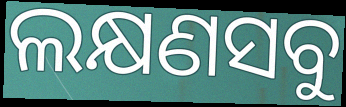
ଲକ୍ଷଣସବୁ